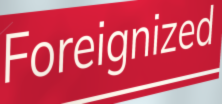
Foreignized